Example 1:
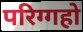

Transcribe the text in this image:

परिग्गहो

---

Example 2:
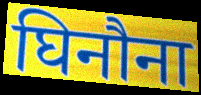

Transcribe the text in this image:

घिनौना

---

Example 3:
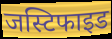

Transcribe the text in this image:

जस्टिफाइड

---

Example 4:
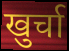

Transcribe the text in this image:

खुर्चा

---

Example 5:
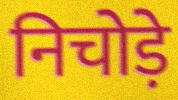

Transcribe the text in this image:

निचोड़े